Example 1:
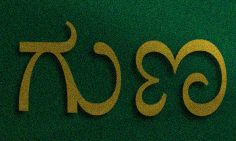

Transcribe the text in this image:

ಗುಣ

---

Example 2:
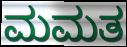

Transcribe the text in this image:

ಮಮತ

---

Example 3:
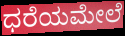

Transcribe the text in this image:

ಧರೆಯಮೇಲೆ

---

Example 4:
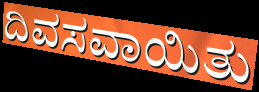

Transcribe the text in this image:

ದಿವಸವಾಯಿತು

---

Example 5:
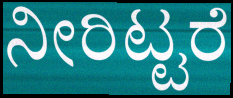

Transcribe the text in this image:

ನೀರಿಟ್ಟರೆ